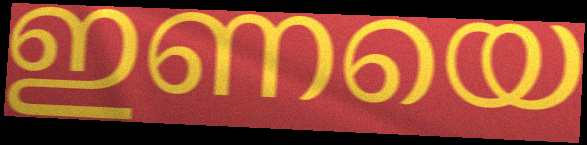
ഇണയെ